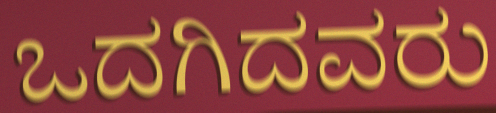
ಒದಗಿದವರು